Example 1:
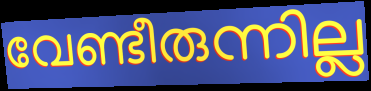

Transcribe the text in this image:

വേണ്ടീരുന്നില്ല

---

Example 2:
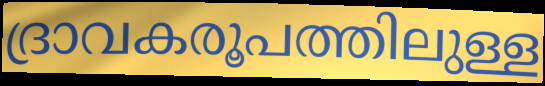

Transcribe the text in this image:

ദ്രാവകരൂപത്തിലുള്ള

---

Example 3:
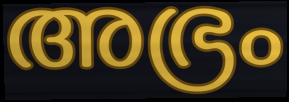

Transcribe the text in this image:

അഭ്രം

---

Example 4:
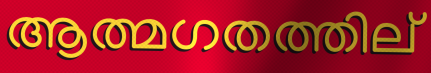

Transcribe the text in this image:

ആത്മഗതത്തില്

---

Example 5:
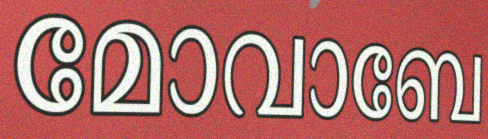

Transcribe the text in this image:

മോവാബേ